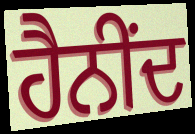
ਹੈਨੀਂਦ